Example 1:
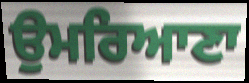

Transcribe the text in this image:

ਉਮਰਿਆਣਾ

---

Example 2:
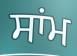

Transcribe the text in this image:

ਸਾਂਮ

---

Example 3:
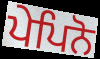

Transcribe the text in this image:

ਪੇਪਿਨੋ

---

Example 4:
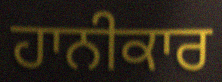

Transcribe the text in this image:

ਹਾਨੀਕਾਰ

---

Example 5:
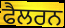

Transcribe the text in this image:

ਫੈਲਰਨ